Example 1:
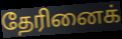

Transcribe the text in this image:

தேரினைக்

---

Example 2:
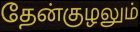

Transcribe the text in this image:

தேன்குழலும்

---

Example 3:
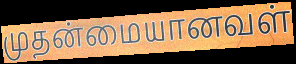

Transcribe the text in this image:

முதன்மையானவள்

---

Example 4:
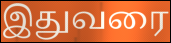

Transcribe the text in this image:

இதுவரை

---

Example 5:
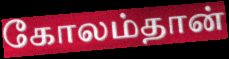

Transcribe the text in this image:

கோலம்தான்